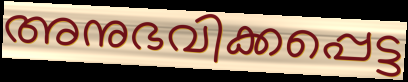
അനുഭവിക്കപ്പെട്ട